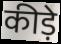
कीड़े